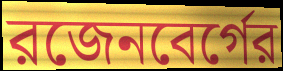
রজেনবের্গের